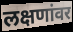
लक्षणांवर